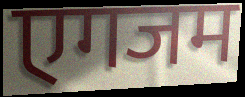
एगजम